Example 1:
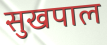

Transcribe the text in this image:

सुखपाल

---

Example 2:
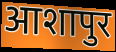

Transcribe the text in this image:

आशापुर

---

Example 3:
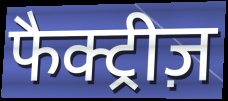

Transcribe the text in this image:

फैक्ट्रीज़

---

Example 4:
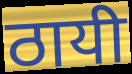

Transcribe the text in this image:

ठायी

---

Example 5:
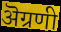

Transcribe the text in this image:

ऄग्रणी